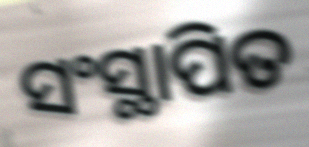
ସଂସ୍ଥାପିତ